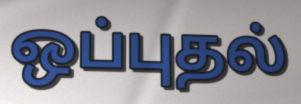
ஒப்புதல்